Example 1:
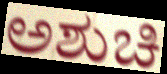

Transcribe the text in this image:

ಅಶುಚಿ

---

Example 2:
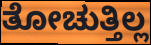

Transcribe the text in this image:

ತೋಚುತ್ತಿಲ್ಲ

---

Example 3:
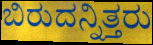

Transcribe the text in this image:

ಬಿರುದನ್ನಿತ್ತರು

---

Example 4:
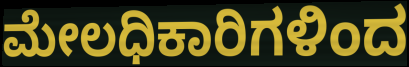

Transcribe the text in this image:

ಮೇಲಧಿಕಾರಿಗಳಿಂದ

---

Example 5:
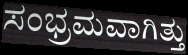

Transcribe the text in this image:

ಸಂಭ್ರಮವಾಗಿತ್ತು